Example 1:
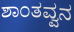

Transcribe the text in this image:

ಶಾಂತವ್ವನ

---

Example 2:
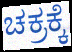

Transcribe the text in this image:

ಚಕ್ರಕ್ಕೆ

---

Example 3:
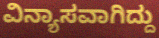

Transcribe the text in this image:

ವಿನ್ಯಾಸವಾಗಿದ್ದು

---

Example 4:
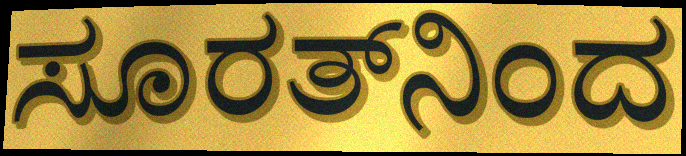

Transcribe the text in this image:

ಸೂರತ್‌ನಿಂದ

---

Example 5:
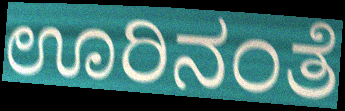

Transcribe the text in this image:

ಊರಿನಂತೆ